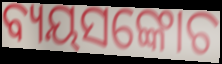
ବ୍ୟୟସଙ୍କୋଚ